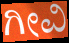
ಗೀವಿ